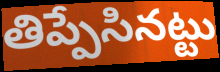
తిప్పేసినట్టు